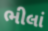
ભીલાં